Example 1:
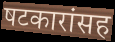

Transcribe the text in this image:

षटकारांसह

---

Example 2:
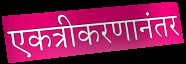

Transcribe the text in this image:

एकत्रीकरणानंतर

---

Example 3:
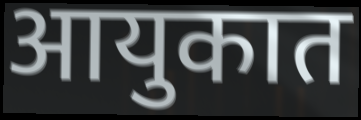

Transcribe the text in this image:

आयुकात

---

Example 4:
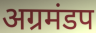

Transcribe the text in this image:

अग्रमंडप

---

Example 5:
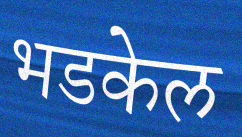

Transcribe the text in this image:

भडकेल